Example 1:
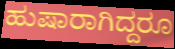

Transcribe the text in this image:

ಹುಷಾರಾಗಿದ್ದರೂ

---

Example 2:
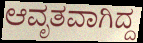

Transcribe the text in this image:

ಆವೃತವಾಗಿದ್ದ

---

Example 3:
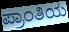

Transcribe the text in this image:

ಪ್ರಾಂತಿಯ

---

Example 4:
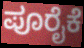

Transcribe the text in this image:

ಪೂರೈಕೆ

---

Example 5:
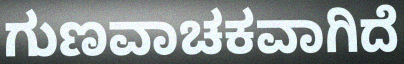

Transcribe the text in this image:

ಗುಣವಾಚಕವಾಗಿದೆ